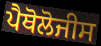
ਪੈਥੋਲੋਜੀਸ